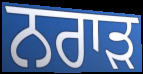
ਨਰਾੜ